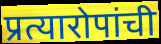
प्रत्यारोपांची